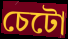
চেটো